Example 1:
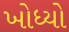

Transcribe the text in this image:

ખોધ્યો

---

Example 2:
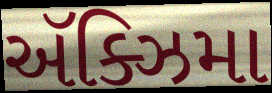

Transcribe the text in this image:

ઍક્ઝિમા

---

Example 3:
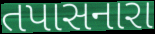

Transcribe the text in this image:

તપાસનારા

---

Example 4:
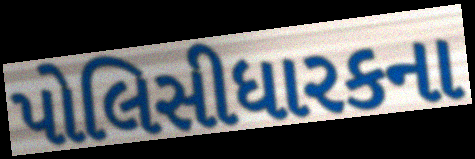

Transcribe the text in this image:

પોલિસીધારકના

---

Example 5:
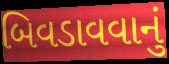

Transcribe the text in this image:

બિવડાવવાનું